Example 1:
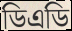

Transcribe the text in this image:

ডিএডি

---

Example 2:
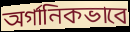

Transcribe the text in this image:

অর্গানিকভাবে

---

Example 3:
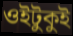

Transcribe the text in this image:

ওইটুকুই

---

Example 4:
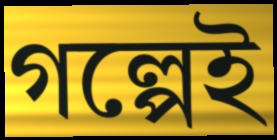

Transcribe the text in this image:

গল্পেই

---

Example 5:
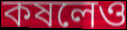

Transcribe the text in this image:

কষলেও